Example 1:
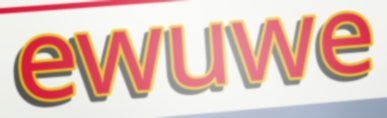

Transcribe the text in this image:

ewuwe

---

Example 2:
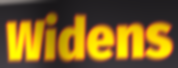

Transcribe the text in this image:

Widens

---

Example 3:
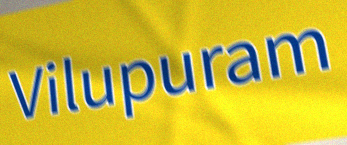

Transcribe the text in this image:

Vilupuram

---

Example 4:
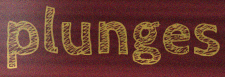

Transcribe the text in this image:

plunges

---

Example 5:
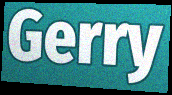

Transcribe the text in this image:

Gerry